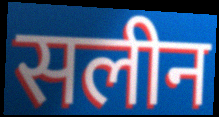
सलीन